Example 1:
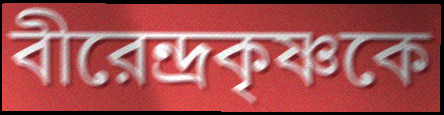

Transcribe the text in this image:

বীরেন্দ্রকৃষ্ণকে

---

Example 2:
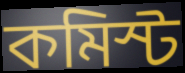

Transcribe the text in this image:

কমিস্ট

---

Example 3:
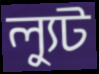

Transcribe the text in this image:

ল্যুট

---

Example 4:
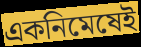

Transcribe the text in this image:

একনিমেষেই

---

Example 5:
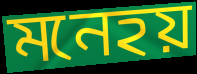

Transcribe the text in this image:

মনেহয়